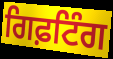
ਗਿਫ਼ਟਿੰਗ